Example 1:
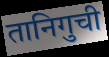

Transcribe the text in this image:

तानिगुची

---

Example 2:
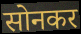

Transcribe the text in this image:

सोनकर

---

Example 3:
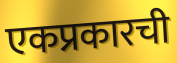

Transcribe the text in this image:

एकप्रकारची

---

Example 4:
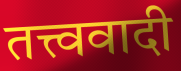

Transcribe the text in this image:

तत्त्ववादी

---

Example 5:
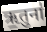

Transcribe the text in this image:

ऋ॒तुना॑